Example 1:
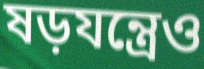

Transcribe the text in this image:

ষড়যন্ত্রেও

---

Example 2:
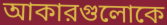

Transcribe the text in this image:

আকারগুলোকে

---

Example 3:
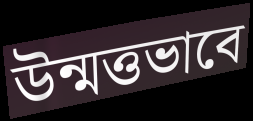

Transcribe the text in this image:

উন্মত্তভাবে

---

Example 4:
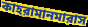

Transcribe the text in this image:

কাহরামানমারাস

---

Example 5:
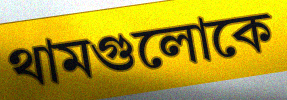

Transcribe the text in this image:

থামগুলোকে